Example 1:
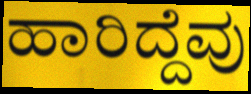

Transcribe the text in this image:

ಹಾರಿದ್ದೆವು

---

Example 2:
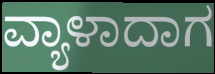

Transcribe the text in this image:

ವ್ಯಾಳಾದಾಗ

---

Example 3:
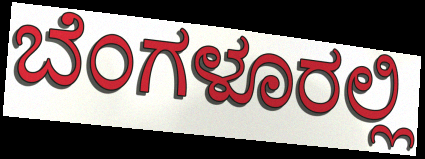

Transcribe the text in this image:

ಬೆಂಗಳೂರಲ್ಲಿ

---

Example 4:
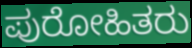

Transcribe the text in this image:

ಪುರೋಹಿತರು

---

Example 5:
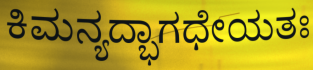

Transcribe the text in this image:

ಕಿಮನ್ಯದ್ಭಾಗಧೇಯತಃ